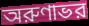
অরুণাভর